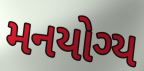
મનયોગ્ય